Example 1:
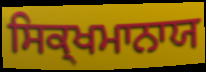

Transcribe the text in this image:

ਸਿਕ੍ਖਮਾਨਾਯ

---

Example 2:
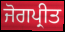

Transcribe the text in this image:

ਜੋਗਪ੍ਰੀਤ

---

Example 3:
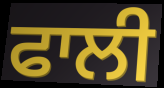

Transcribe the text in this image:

ਫਾਲੀ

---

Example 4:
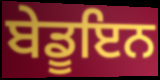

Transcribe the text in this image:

ਬੇਡੂਇਨ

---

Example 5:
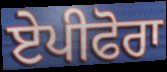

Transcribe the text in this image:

ਏਪੀਫੋਰਾ